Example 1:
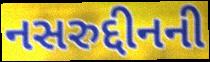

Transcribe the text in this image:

નસરુદ્દીનની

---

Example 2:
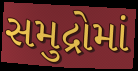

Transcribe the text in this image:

સમુદ્રોમાં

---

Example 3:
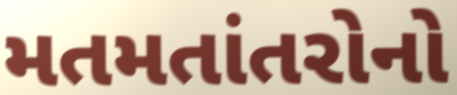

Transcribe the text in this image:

મતમતાંતરોનો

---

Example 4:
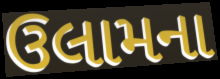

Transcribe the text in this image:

ઉલામના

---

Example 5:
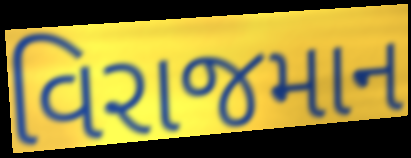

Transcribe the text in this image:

વિરાજમાન